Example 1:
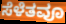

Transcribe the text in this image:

ಸೆಳೆತವೂ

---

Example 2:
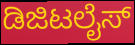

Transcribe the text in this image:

ಡಿಜಿಟಲೈಸ್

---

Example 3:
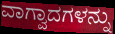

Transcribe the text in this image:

ವಾಗ್ವಾದಗಳನ್ನು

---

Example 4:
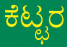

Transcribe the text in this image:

ಕೆಟ್ಟರ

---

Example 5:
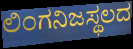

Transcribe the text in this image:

ಲಿಂಗನಿಜಸ್ಥಲದ